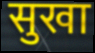
सुखा